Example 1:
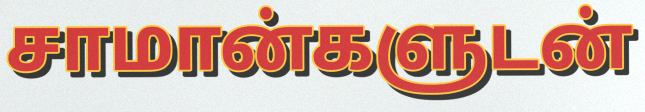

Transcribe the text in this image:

சாமான்களுடன்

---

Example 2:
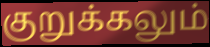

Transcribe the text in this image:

குறுக்கலும்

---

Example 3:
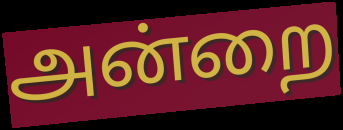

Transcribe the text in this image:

அன்றை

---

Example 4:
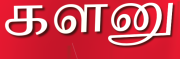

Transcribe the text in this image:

களனு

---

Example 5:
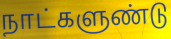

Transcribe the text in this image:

நாட்களுண்டு